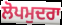
ਲੋਪਮੁਦਰਾ